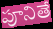
పూనితే